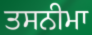
ਤਸਨੀਮਾ